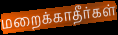
மறைக்காதீர்கள்